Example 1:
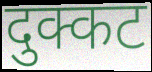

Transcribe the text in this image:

दुक्कट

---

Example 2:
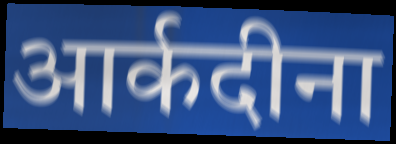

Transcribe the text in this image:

आर्कदीना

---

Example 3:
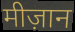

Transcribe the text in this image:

मीज़ान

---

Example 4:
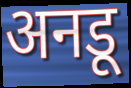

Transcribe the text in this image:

अनडू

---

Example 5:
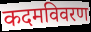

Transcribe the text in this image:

कदमविवरण